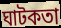
ঘাটকতা